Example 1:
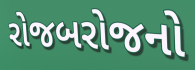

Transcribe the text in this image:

રોજબરોજનો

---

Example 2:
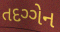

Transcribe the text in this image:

તદગ્ગેન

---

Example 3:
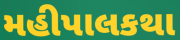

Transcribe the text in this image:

મહીપાલકથા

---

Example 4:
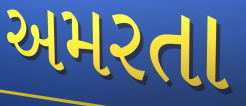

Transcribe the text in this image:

અમરતા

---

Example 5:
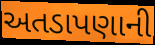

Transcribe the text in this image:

અતડાપણાની